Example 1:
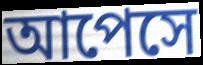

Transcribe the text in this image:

আপেসে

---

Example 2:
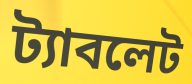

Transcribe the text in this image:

ট্যাবলেট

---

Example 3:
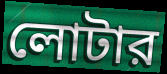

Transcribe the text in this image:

লোটার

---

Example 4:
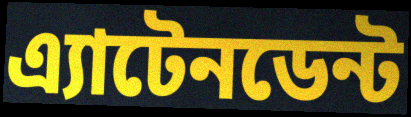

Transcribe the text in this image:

এ্যাটেনডেন্ট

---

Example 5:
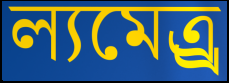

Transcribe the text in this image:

ল্যমেত্র্র